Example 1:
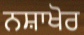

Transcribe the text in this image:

ਨਸ਼ਾਖੋਰ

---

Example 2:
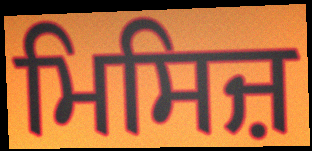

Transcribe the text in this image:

ਮਿਸਿਜ਼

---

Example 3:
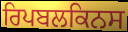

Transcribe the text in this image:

ਰਿਪਬਲਕਿਨਸ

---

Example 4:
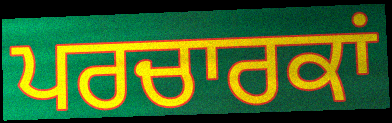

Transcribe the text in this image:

ਪਰਚਾਰਕਾਂ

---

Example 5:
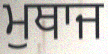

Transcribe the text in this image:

ਮੁਥਾਜ